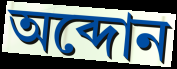
অব্দোন